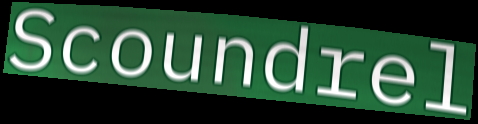
Scoundrel